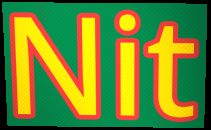
Nit